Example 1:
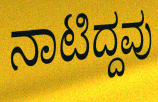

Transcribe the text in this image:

ನಾಟಿದ್ದವು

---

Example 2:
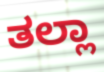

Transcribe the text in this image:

ತಲ್ಲಾ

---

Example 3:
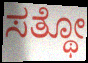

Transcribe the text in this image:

ಸತ್ಥೋ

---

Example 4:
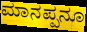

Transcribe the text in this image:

ಮಾನಪ್ಪನೂ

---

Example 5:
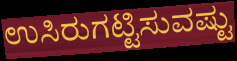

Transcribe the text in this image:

ಉಸಿರುಗಟ್ಟಿಸುವಷ್ಟು